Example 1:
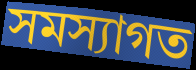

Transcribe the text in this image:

সমস্যাগত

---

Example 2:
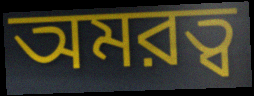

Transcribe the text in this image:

অমরত্ব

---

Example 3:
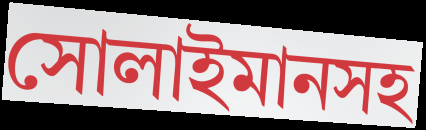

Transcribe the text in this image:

সোলাইমানসহ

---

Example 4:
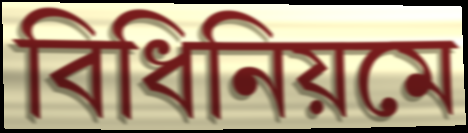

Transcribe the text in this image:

বিধিনিয়মে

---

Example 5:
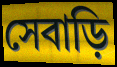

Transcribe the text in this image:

সেবাড়ি